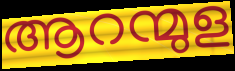
ആറന്മുള